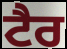
ਟੈਰ